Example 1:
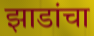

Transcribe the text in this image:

झाडांचा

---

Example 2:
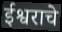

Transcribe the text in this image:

ईश्वराचे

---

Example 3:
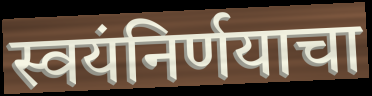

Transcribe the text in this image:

स्वयंनिर्णयाचा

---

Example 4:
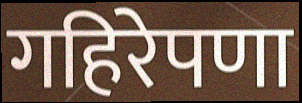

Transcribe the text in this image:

गहिरेपणा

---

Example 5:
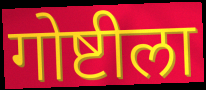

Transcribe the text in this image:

गोष्टीला